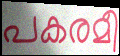
പകരമീ